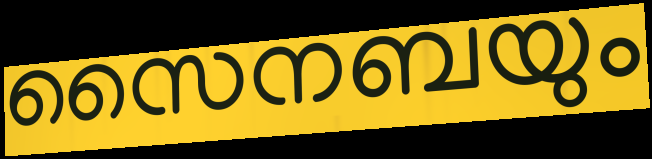
സൈനബയും